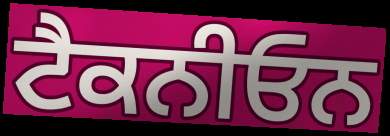
ਟੈਕਨੀਓਨ